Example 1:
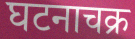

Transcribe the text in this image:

घटनाचक्र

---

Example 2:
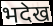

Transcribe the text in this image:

भदेख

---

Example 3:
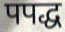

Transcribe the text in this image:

पपद्ध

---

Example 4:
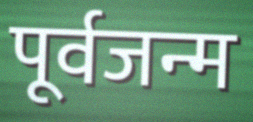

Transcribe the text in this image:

पूर्वजन्म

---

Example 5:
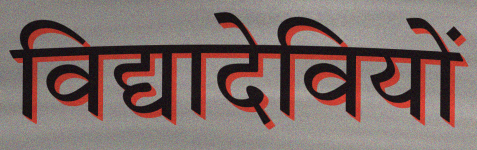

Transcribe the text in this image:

विद्यादेवियों